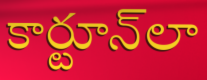
కార్టూన్‌లా